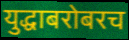
युद्धाबरोबरच